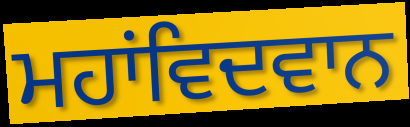
ਮਹਾਂਵਿਦਵਾਨ